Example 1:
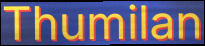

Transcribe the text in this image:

Thumilan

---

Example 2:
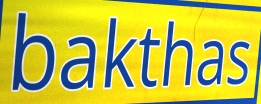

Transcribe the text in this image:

bakthas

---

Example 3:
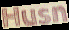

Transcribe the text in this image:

Husn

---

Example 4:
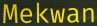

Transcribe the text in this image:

Mekwan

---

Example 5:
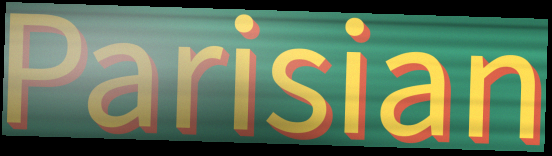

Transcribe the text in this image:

Parisian